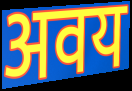
अवय